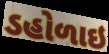
ડહોળાઇ